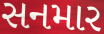
સનમાર